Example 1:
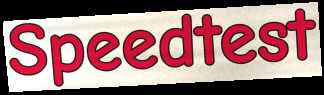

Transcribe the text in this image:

Speedtest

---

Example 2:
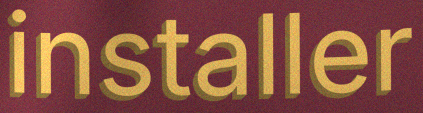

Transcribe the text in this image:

installer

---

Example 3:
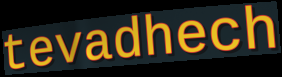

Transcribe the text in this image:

tevadhech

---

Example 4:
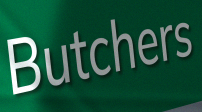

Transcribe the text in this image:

Butchers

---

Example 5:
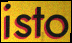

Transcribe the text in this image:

isto